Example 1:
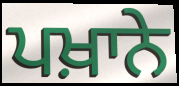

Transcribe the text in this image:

ਪਖ਼ਾਨੇ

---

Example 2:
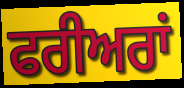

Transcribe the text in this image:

ਫਰੀਅਰਾਂ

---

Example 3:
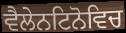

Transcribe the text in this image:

ਵੈਲੇਨਟਿਨੋਵਿਚ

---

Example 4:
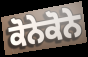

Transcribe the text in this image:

ਕੋਨੇਕੋਨੇ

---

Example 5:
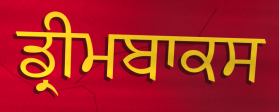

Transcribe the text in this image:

ਡ੍ਰੀਮਬਾਕਸ